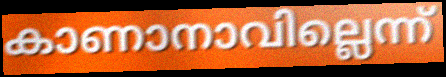
കാണാനാവില്ലെന്ന്